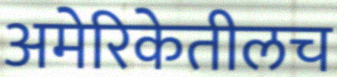
अमेरिकेतीलच